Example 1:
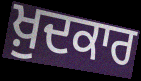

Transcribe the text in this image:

ਖ਼ੁਦਕਾਰ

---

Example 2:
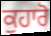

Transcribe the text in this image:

ਕੁਹਾਰੋ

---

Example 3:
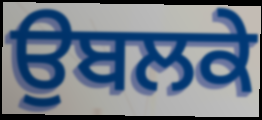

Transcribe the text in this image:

ਉਬਲਕੇ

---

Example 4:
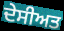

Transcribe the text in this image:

ਦੇਸੀਅਤ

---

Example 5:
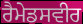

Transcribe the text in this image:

ਰੈਮੇਡਸਵੀਰ